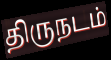
திருநடம்